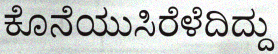
ಕೊನೆಯುಸಿರೆಳೆದಿದ್ದು